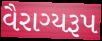
વૈરાગ્યરૂપ